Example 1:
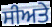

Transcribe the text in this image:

ਸੀਅਤੇ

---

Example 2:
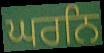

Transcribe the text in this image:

ਘਰਨਿ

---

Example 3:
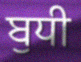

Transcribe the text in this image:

ਬੁਧੀ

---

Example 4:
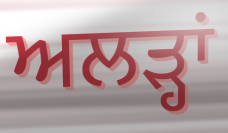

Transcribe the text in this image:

ਅਲੜ੍ਹਾਂ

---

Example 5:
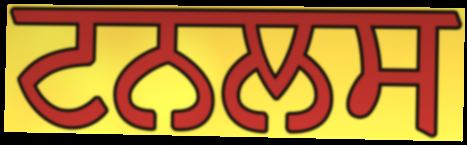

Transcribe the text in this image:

ਟਨਲਸ